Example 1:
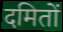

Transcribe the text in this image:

दमितों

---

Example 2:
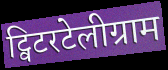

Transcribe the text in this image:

ट्विटरटेलीग्राम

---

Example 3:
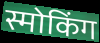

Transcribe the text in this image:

स्मोकिंग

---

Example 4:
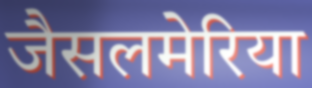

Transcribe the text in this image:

जैसलमेरिया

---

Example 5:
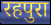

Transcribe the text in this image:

रहपुरा